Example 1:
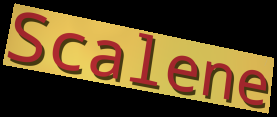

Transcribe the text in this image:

Scalene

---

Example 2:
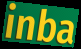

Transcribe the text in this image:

inba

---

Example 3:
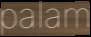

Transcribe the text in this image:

palam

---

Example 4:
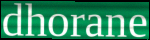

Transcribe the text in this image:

dhorane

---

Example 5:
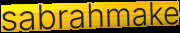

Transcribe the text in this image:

sabrahmake